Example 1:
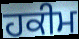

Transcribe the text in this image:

ਹਕੀਮ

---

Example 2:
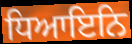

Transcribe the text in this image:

ਧਿਆਇਨਿ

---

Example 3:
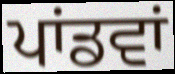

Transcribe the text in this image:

ਪਾਂਡਵਾਂ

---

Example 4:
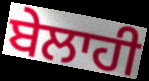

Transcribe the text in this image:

ਬੇਲਾਹੀ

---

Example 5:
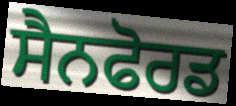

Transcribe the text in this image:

ਸੈਨਫੋਰਡ